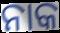
ନାକ